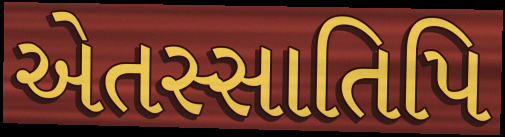
એતસ્સાતિપિ